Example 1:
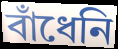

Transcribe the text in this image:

বাঁধেনি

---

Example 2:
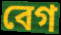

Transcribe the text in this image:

বেগ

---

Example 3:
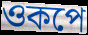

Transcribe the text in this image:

ওকপে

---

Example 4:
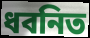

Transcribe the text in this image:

ধবনিত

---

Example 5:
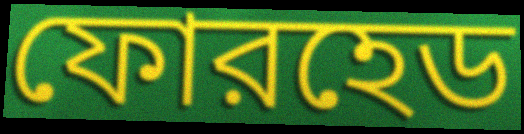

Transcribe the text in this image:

ফোরহেড